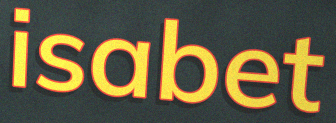
isabet